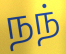
நந்